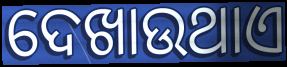
ଦେଖାଉଥାଏ